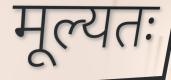
मूल्यतः